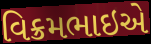
વિક્રમભાઇએ